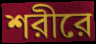
শরীরে